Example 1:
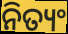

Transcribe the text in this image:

ନିତ୍ୟଂ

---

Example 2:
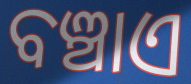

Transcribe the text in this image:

ବଞ୍ଚାଏ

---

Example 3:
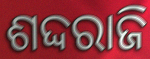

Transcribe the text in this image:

ଶଦ୍ଦରାଜି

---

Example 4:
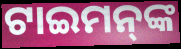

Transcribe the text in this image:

ଟାଇମନ୍‌ଙ୍କ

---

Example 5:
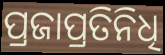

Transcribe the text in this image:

ପ୍ରଜାପ୍ରତିନିଧି